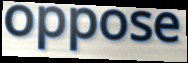
oppose